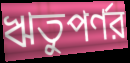
ঋতুপর্ণর